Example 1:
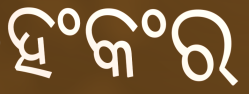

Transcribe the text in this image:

ହଂକଂର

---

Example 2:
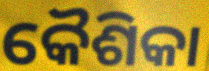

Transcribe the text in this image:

କୈଶିକା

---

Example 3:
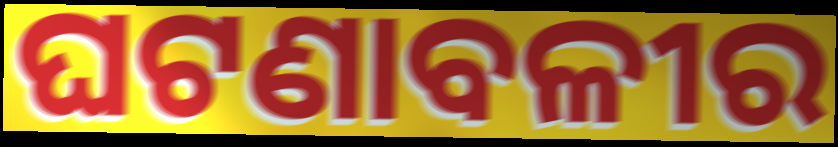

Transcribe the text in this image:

ଘଟଣାବଳୀର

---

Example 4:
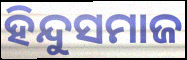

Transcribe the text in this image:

ହିନ୍ଦୁସମାଜ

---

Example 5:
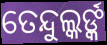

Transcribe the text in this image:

ତେନ୍ଦୁଲ୍କର୍ଙ୍କ